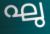
ഘു